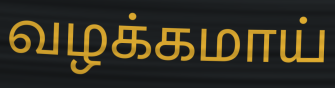
வழக்கமாய்